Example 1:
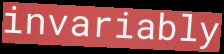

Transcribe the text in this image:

invariably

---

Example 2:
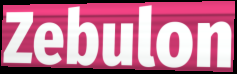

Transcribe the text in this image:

Zebulon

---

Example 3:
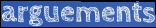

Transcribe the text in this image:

arguements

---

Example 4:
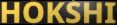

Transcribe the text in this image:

HOKSHI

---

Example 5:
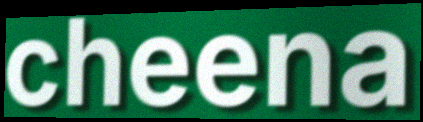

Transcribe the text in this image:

cheena